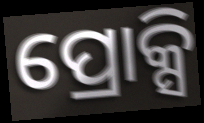
ପ୍ରୋକ୍ସି